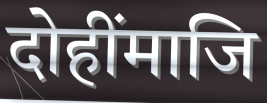
दोहींमाजि